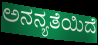
ಅನನ್ಯತೆಯಿದೆ